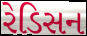
રેડિસન